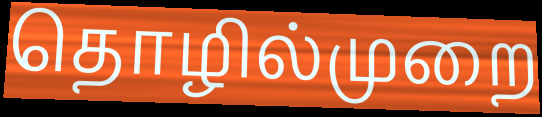
தொழில்முறை